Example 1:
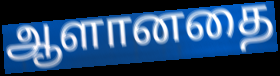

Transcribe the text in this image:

ஆளானதை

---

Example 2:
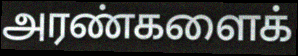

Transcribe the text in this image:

அரண்களைக்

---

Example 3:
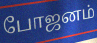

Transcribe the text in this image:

போஜனம்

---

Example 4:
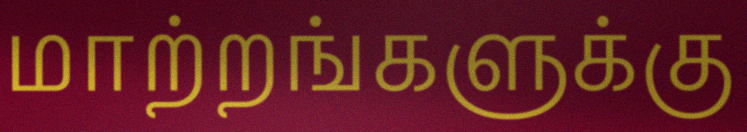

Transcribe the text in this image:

மாற்றங்களுக்கு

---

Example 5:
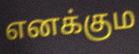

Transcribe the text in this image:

எனக்கும